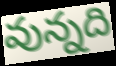
వున్నది